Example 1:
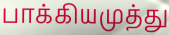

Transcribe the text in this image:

பாக்கியமுத்து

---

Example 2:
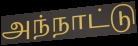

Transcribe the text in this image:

அந்நாட்டு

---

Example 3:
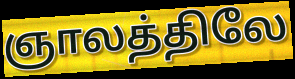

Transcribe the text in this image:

ஞாலத்திலே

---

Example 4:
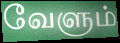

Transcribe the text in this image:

வேளும்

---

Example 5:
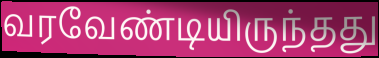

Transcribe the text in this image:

வரவேண்டியிருந்தது